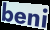
beni